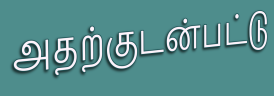
அதற்குடன்பட்டு